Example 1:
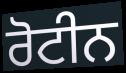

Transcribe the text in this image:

ਰੋਟੀਨ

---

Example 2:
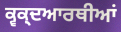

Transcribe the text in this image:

ਕ੍ਵਕ੍ਦਆਰਥੀਆਂ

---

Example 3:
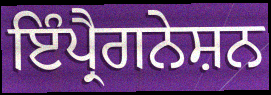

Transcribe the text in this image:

ਇੰਪ੍ਰੈਗਨੇਸ਼ਨ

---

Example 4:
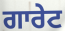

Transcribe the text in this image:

ਗਾਰੇਟ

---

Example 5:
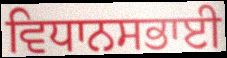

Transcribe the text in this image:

ਵਿਧਾਨਸਭਾਈ